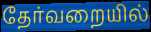
தேர்வறையில்